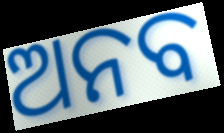
ଅନବ